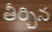
తీర్చిన